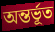
অন্তর্ভূত